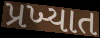
પ્રખ્યાત